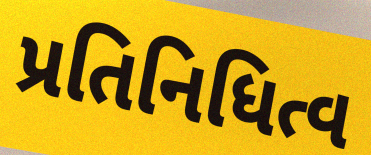
પ્રતિનિધિત્વ